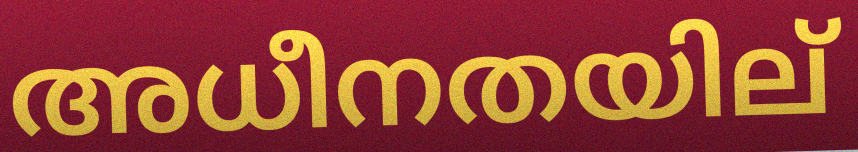
അധീനതയില്